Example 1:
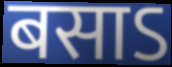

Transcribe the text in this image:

बसाऽ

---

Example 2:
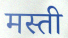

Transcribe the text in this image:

मस्ती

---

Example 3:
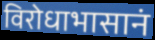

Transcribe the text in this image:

विरोधाभासानं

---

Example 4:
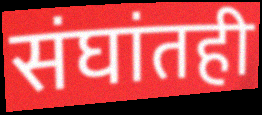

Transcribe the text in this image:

संघांतही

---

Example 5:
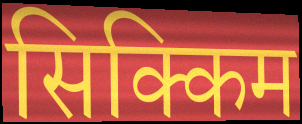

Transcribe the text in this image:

सिक्किम